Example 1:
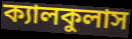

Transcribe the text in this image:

ক্যালকুলাস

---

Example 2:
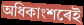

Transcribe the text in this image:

অধিকাংশৰেই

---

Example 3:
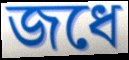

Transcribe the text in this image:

জধে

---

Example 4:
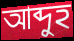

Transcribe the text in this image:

আব্দুহ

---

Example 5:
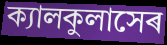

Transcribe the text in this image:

ক্যালকুলাসেৰ